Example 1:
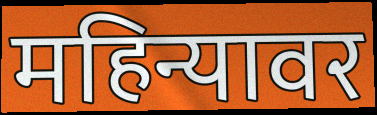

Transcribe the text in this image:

महिन्यावर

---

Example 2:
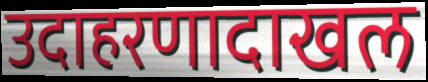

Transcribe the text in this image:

उदाहरणादाखल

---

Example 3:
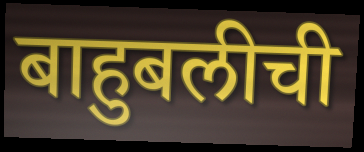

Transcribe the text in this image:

बाहुबलीची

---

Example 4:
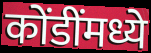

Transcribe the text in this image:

कोंडींमध्ये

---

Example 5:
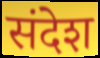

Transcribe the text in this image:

संदेश